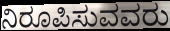
ನಿರೂಪಿಸುವವರು